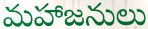
మహాజనులు